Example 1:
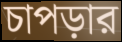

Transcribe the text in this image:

চাপড়ার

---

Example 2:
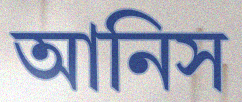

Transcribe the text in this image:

আনিস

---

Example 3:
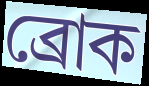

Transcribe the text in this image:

ব্রোক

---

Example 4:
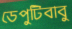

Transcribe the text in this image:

ডেপুটিবাবু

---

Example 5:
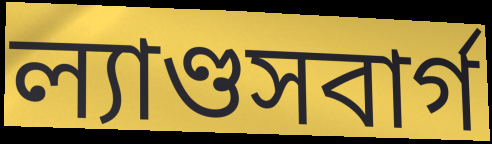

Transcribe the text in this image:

ল্যাণ্ডসবার্গ